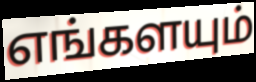
எங்களயும்